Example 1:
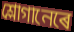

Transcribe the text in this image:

শ্লোগানেৰে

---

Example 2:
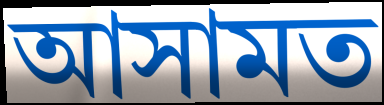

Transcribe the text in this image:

আসামত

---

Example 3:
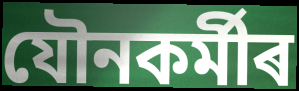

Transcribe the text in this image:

যৌনকৰ্মীৰ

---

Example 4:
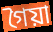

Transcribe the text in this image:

গৈয়া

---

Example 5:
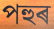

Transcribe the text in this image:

পহুৰ